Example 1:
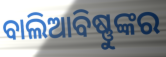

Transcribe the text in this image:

ବାଲିଆବିଷ୍ଣୁଙ୍କର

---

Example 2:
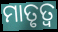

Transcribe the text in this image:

ମାତୃତ୍ୱ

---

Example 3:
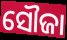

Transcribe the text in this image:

ସୌଜା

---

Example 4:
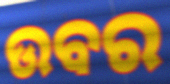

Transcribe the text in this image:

ଉବର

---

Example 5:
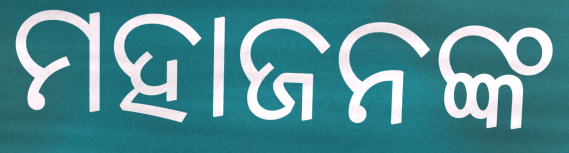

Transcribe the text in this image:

ମହାଜନଙ୍କ